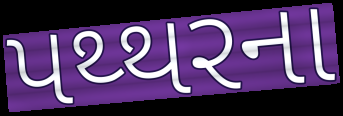
પથ્થરના